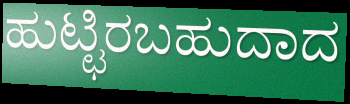
ಹುಟ್ಟಿರಬಹುದಾದ